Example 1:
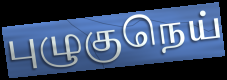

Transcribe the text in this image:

புழுகுநெய்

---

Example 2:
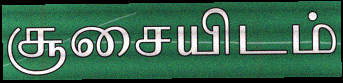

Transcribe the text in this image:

சூசையிடம்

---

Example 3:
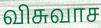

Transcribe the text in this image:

விசுவாச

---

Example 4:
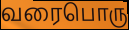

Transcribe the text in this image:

வரைபொரு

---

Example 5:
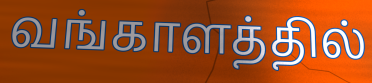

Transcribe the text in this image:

வங்காளத்தில்